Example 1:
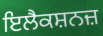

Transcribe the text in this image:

ਇਲੈਕਸ਼ਨਜ਼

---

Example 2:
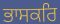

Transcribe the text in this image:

ਭਾਸਕਰਿ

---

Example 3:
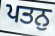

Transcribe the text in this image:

ਪਤਨੁ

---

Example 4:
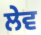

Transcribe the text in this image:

ਲੇਵ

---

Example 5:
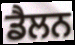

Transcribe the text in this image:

ਡੈਲਨ